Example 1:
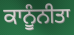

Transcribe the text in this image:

ਕਾਨੂੰਨੀਤਾ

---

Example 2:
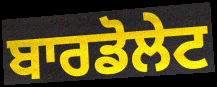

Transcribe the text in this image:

ਬਾਰਡੋਲੇਟ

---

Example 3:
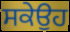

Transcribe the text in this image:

ਸਕੇਉਹ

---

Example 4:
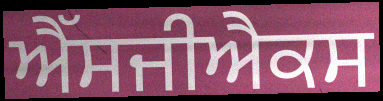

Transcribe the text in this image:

ਐੱਸਜੀਐਕਸ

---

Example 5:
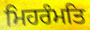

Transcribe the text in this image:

ਮਿਹਰੰਮਤਿ